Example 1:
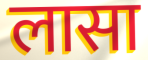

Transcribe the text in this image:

लासा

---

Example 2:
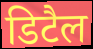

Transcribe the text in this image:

डिटैल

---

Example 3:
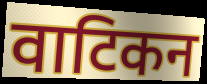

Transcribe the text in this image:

वाटिकन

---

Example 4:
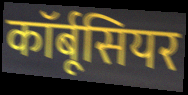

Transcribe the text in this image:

कॉर्बूसियर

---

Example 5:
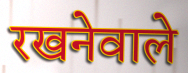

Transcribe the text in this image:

रखनेवाले